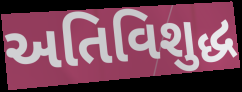
અતિવિશુદ્ધ